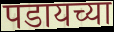
पडायच्या